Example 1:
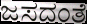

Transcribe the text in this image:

ಜಸದಂತೆ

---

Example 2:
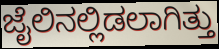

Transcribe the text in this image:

ಜೈಲಿನಲ್ಲಿಡಲಾಗಿತ್ತು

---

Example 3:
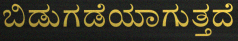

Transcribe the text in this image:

ಬಿಡುಗಡೆಯಾಗುತ್ತದೆ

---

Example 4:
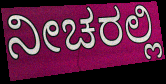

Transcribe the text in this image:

ನೀಚರಲ್ಲಿ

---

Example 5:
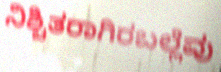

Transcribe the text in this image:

ನಿಶ್ಚಿತರಾಗಿರಬಲ್ಲೆವು